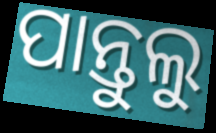
ପାନ୍ତୁଲୁ